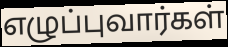
எழுப்புவார்கள்